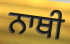
ਨਾਥੀ